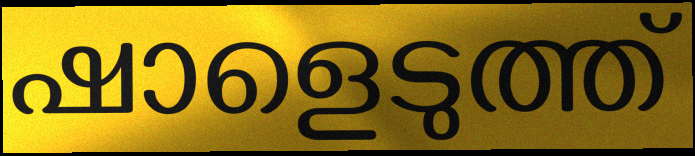
ഷാളെടുത്ത്